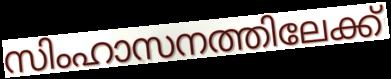
സിംഹാസനത്തിലേക്ക്